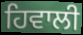
ਹਿਵਾਲੀ